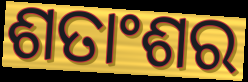
ଶତାଂଶର